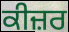
ਕੀਜ਼ਰ